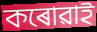
কৰোৱাই